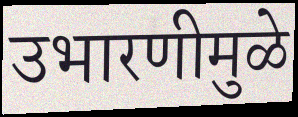
उभारणीमुळे